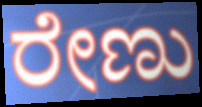
ರೇಣು